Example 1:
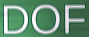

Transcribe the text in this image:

DOF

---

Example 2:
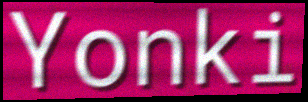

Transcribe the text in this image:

Yonki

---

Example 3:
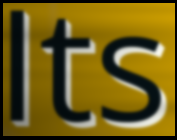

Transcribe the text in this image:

Its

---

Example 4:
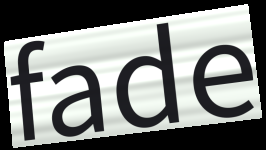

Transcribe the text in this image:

fade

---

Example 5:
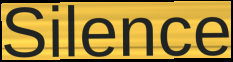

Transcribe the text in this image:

Silence